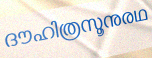
ദൗഹിത്രസൂനുരഥ